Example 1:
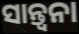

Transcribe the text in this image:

ସାନ୍ତ୍ବନା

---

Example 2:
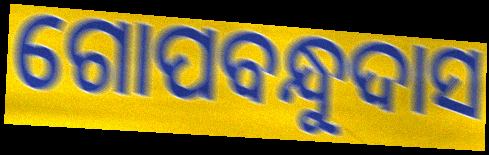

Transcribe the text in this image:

ଗୋପବନ୍ଧୁଦାସ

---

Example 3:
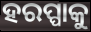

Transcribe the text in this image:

ହରପ୍ପାକୁ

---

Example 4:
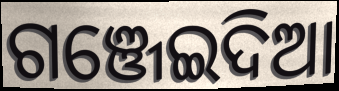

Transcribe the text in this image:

ଗଞ୍ଜେଇଦିଆ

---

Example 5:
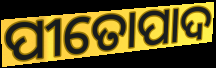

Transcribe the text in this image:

ପୀତୋପାଦ